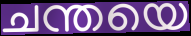
ചന്തയെ